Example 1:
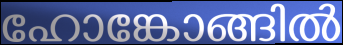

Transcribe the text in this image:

ഹോങ്കോങ്ങിൽ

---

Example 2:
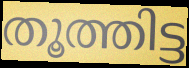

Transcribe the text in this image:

തൂത്തിട്ട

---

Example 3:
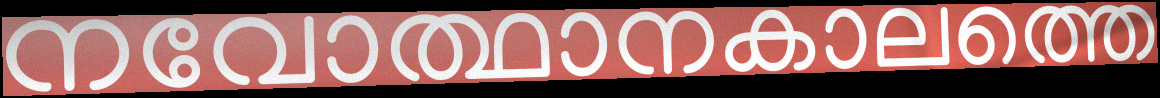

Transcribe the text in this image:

നവോത്ഥാനകാലത്തെ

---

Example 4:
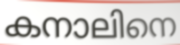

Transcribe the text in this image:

കനാലിനെ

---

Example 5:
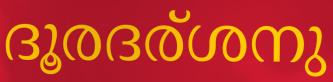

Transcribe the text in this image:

ദൂരദര്ശനു